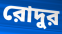
রোদুর